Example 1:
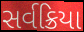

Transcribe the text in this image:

સર્વક્રિયા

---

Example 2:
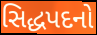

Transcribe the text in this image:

સિદ્ધપદનો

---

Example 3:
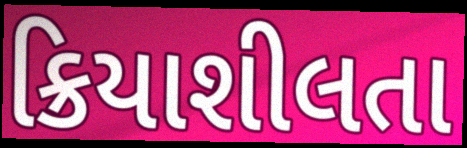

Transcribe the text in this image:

ક્રિયાશીલતા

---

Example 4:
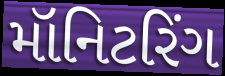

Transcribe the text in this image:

મૉનિટરિંગ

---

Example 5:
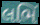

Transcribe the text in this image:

લભિં